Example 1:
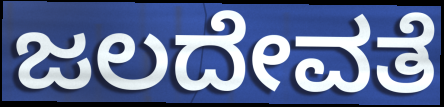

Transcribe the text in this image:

ಜಲದೇವತೆ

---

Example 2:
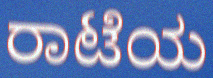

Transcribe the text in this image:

ರಾಟೆಯ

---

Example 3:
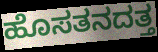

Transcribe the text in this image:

ಹೊಸತನದತ್ತ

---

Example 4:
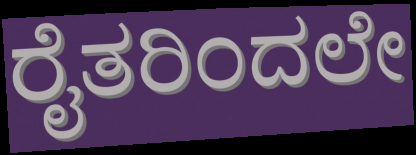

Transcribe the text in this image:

ರೈತರಿಂದಲೇ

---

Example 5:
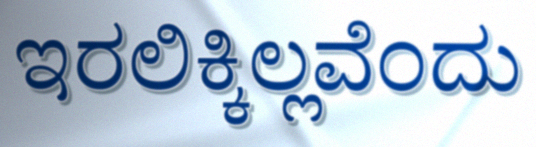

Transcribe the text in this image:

ಇರಲಿಕ್ಕಿಲ್ಲವೆಂದು